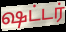
ஷட்டர்